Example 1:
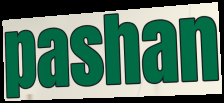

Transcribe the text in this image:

pashan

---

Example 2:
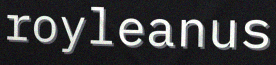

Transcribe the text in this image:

royleanus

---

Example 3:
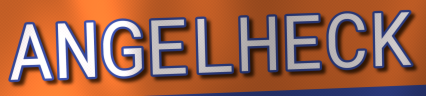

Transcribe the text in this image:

ANGELHECK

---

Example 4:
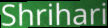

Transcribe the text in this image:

Shrihari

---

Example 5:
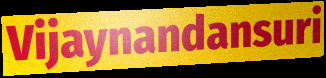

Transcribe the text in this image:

Vijaynandansuri